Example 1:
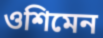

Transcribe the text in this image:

ওশিমেন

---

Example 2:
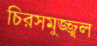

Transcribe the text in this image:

চিরসমুজ্জ্বল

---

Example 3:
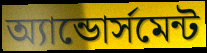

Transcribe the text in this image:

অ্যান্ডোর্সমেন্ট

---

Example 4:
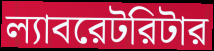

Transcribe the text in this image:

ল্যাবরেটরিটার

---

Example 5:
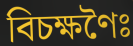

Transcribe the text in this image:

বিচক্ষণৈঃ